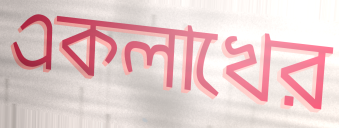
একলাখের